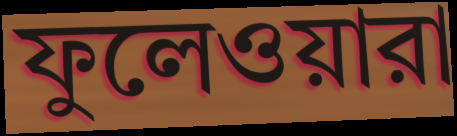
ফুলেওয়ারা